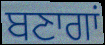
ਬਣਾਗਾਂ